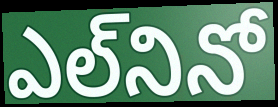
ఎల్‌నినో